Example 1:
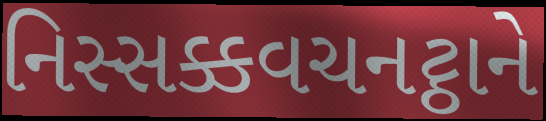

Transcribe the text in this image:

નિસ્સક્કવચનટ્ઠાને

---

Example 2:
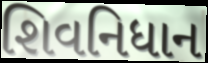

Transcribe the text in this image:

શિવનિધાન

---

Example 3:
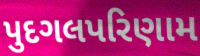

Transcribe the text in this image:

પુદગલપરિણામ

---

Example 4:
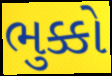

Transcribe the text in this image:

ભુક્કો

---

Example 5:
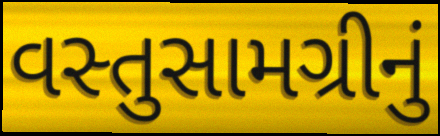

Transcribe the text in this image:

વસ્તુસામગ્રીનું